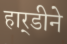
हार्डीने